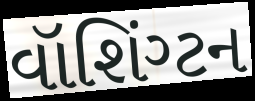
વૉશિંગ્ટન